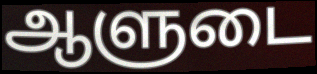
ஆளுடை